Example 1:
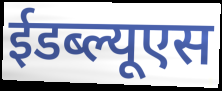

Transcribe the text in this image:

ईडब्ल्यूएस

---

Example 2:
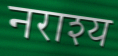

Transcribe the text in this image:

नराश्य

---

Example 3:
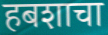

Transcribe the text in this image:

हबशाचा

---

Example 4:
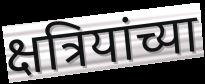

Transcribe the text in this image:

क्षत्रियांच्या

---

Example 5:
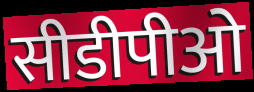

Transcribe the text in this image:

सीडीपीओ